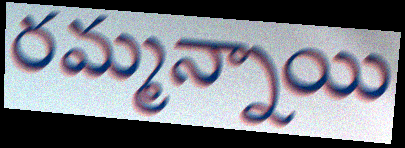
రమ్మన్నాయి